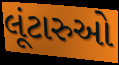
લૂંટારુઓ